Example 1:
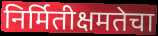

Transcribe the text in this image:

निर्मितीक्षमतेचा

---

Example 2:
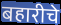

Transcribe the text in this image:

बहारीचे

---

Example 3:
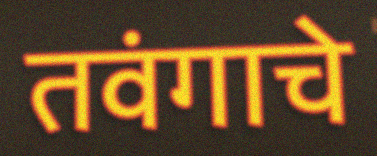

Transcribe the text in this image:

तवंगाचे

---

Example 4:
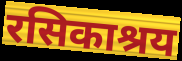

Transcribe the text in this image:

रसिकाश्रय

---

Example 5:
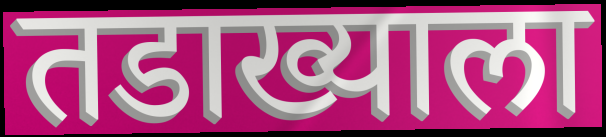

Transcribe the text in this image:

तडाख्याला